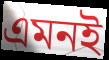
এমনই